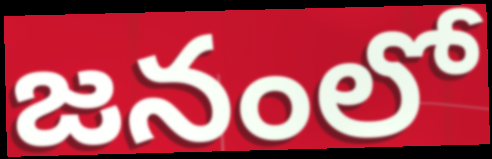
జనంలో